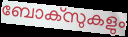
ബോക്സുകളും